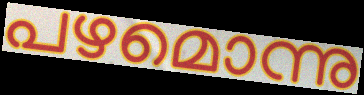
പഴമൊന്നു